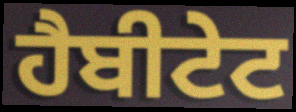
ਹੈਬੀਟੇਟ